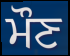
ਮੌਣ